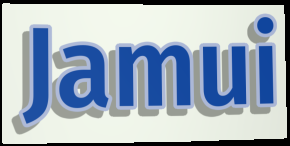
Jamui